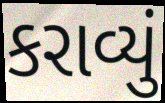
કરાવ્યું